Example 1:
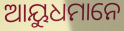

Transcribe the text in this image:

ଆୟୁଧମାନେ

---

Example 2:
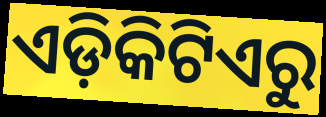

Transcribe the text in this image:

ଏଡ଼ିକିଟିଏରୁ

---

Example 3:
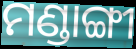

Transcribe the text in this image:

ମଣ୍ଡାଙ୍ଗୀ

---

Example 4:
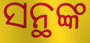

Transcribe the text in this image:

ସନ୍ଥଙ୍କ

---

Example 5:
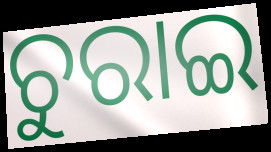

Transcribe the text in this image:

ଚୁରାଇ